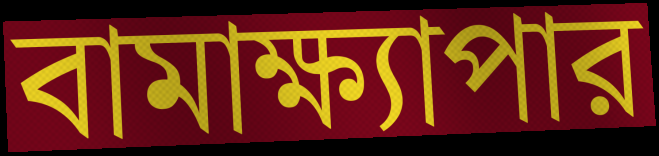
বামাক্ষ্যাপার